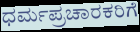
ಧರ್ಮಪ್ರಚಾರಕರಿಗೆ